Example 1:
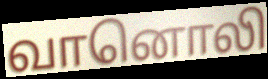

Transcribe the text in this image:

வானொலி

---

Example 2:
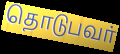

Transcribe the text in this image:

தொடுபவர்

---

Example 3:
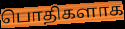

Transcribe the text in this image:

பொதிகளாக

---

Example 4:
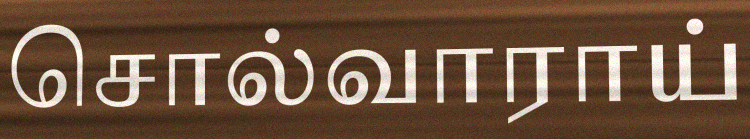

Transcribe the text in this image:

சொல்வாராய்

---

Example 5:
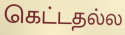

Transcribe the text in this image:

கெட்டதல்ல